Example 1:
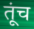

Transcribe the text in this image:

तूंच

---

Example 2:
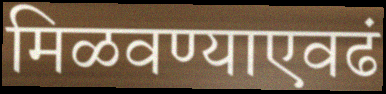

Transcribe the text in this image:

मिळवण्याएवढं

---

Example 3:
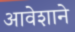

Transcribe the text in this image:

आवेशाने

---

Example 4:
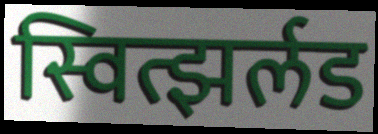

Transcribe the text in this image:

स्वित्झर्लड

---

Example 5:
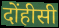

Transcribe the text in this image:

दोंहीसी